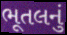
ભૂતલનું